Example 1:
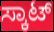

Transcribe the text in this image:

ಸ್ಕಾಟ್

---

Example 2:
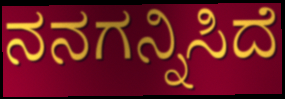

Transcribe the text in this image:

ನನಗನ್ನಿಸಿದೆ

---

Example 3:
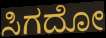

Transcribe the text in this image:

ಸಿಗದೋ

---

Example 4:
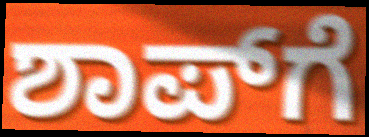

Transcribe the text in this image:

ಶಾಪ್‌ಗೆ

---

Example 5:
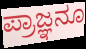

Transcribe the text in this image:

ಪ್ರಾಜ್ಞನೂ